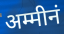
अम्मीनं